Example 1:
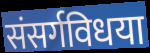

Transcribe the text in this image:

संसर्गविधया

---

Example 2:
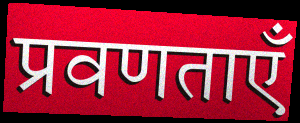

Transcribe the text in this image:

प्रवणताएँ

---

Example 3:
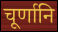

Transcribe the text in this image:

चूर्णानि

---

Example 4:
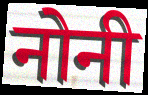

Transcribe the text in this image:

नोनी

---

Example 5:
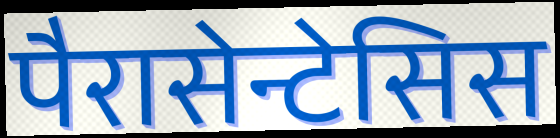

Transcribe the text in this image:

पैरासेन्टेसिस